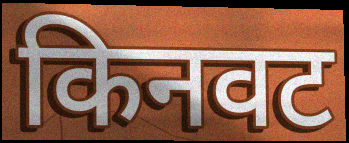
किनवट